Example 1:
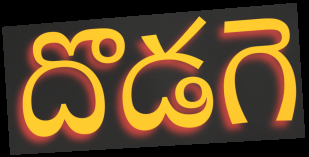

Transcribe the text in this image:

దొడగె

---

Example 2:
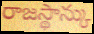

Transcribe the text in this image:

రాజస్థాన్కు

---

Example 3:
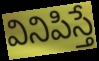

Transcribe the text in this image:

వినిపిస్తే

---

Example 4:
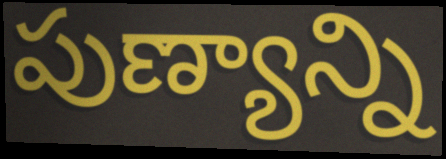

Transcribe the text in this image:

పుణ్యాన్ని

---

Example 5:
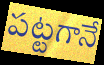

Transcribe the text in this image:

పట్టగానే